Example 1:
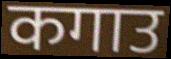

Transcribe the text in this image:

कगाउ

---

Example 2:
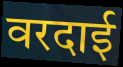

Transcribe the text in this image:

वरदाई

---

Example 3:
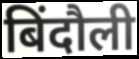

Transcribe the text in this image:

बिंदौली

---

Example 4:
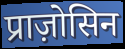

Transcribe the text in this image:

प्राज़ोसिन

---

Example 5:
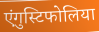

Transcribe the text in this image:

एंगुस्टिफोलिया